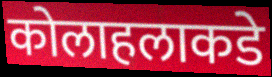
कोलाहलाकडे